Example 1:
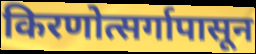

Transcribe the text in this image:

किरणोत्सर्गापासून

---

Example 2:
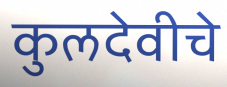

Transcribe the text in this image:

कुलदेवीचे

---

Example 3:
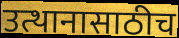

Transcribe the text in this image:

उत्थानासाठीच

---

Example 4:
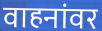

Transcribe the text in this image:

वाहनांवर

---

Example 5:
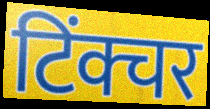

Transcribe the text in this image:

टिंक्चर